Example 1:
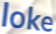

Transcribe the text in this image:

loke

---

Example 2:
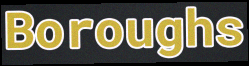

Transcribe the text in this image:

Boroughs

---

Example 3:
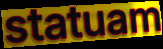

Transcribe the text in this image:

statuam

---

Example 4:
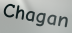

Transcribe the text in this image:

Chagan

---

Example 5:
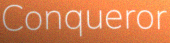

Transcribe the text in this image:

Conqueror